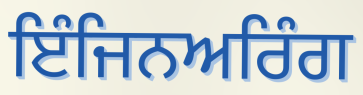
ਇੰਜਿਨਅਰਿੰਗ